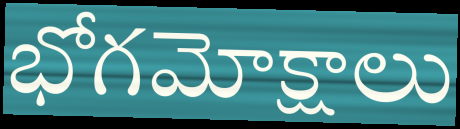
భోగమోక్షాలు